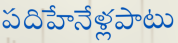
పదిహేనేళ్లపాటు